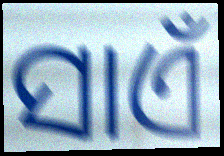
ସାଏଁ